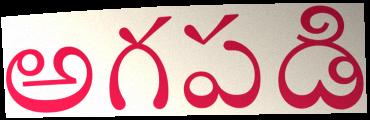
అగపడి